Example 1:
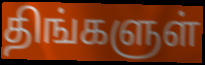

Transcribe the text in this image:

திங்களுள்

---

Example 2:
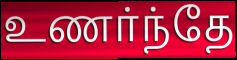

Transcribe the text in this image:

உணர்ந்தே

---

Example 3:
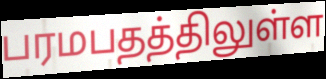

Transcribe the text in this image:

பரமபதத்திலுள்ள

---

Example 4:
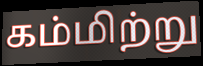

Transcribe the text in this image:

கம்மிற்று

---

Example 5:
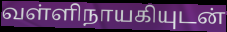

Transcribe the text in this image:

வள்ளிநாயகியுடன்